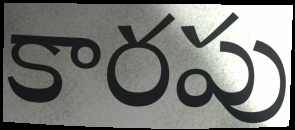
కారపు